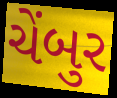
ચેંબુર